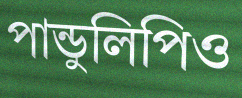
পান্ডুলিপিও